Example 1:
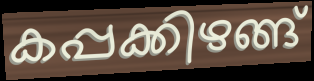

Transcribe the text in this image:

കപ്പക്കിഴങ്ങ്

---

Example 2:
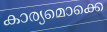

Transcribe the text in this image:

കാര്യമൊക്കെ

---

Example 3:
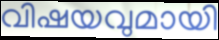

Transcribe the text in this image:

വിഷയവുമായി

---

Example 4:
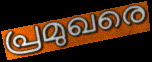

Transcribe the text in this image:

പ്രമുഖരെ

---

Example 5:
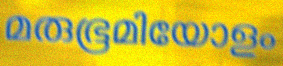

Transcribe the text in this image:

മരുഭൂമിയോളം